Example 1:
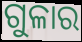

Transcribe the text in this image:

ଗୁଳାର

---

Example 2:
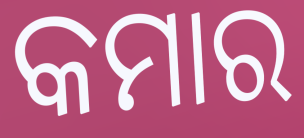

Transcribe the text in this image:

କମାର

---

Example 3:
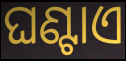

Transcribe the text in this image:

ଘଣ୍ଟାଏ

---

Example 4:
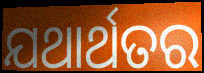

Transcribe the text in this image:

ଯଥାର୍ଥତର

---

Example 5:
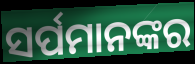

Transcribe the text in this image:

ସର୍ପମାନଙ୍କର